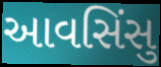
આવસિંસુ